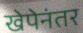
खेपेनंतर